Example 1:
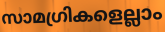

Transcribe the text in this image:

സാമഗ്രികളെല്ലാം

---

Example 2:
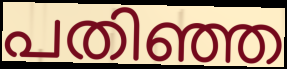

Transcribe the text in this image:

പതിഞ്ഞ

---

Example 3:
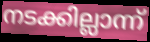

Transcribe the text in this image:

നടക്കില്ലാന്ന്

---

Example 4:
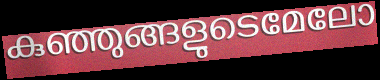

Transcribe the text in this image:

കുഞ്ഞുങ്ങളുടെമേലോ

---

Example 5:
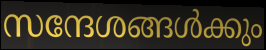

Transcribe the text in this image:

സന്ദേശങ്ങൾക്കും